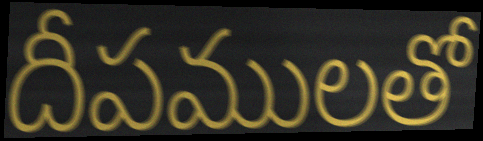
దీపములతో